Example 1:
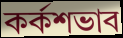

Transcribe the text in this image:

কর্কশভাব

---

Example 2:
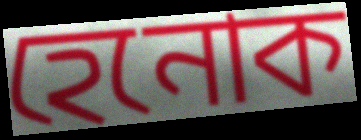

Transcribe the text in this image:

হেনোক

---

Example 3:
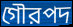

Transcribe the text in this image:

গৌরপদ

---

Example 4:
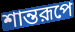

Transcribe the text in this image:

শান্তরূপে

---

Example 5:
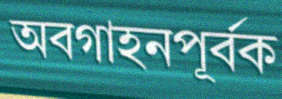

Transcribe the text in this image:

অবগাহনপূর্বক